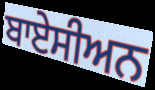
ਬਾਏਸੀਅਨ